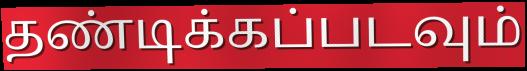
தண்டிக்கப்படவும்